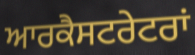
ਆਰਕੈਸਟਰੇਟਰਾਂ